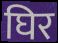
घिर